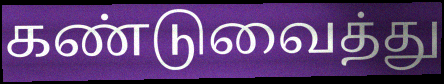
கண்டுவைத்து